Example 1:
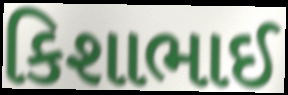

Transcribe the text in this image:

કિશાભાઈ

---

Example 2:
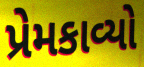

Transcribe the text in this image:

પ્રેમકાવ્યો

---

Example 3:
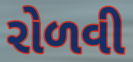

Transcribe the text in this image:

રોળવી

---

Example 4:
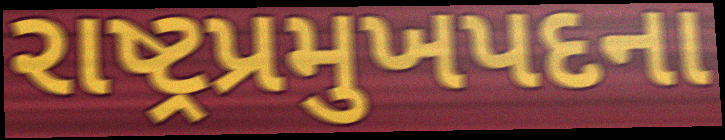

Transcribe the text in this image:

રાષ્ટ્રપ્રમુખપદના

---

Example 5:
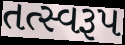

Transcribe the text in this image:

તત્સ્વરૂપ